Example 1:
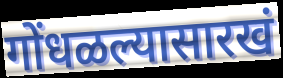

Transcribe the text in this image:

गोंधळल्यासारखं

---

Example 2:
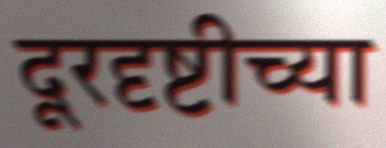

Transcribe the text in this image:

दूरदृष्टीच्या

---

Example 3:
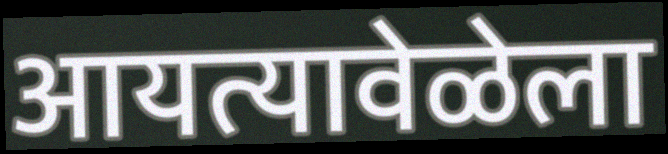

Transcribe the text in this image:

आयत्यावेळेला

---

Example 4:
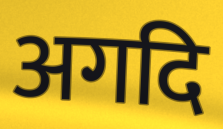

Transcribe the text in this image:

अगदि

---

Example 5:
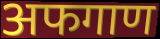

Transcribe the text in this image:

अफगाण